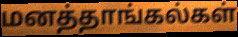
மனத்தாங்கல்கள்